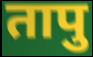
तापु